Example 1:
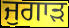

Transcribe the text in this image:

ਜੁਗਾੜ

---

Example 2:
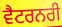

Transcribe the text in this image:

ਵੈਟਰਨਰੀ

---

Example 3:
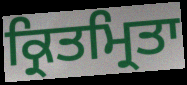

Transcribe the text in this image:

ਕ੍ਰਿਤਮ੍ਰਿਤਾ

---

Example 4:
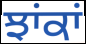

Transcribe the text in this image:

ਝਾਂਕਾਂ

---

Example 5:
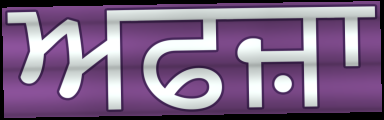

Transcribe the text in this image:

ਅਫਜ਼ਾ